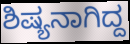
ಶಿಷ್ಯನಾಗಿದ್ದ